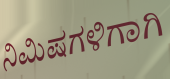
ನಿಮಿಷಗಳಿಗಾಗಿ